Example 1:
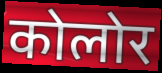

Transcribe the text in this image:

कोलोर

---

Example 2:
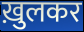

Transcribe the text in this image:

ख़ुलकर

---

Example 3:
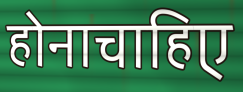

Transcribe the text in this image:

होनाचाहिए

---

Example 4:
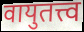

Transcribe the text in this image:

वायुतत्त्व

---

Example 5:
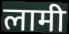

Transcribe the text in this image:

लामी